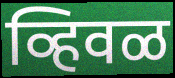
व्हिवळ